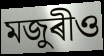
মজুৰীও